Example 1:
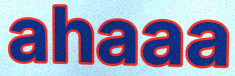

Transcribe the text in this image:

ahaaa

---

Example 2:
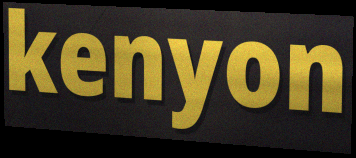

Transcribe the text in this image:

kenyon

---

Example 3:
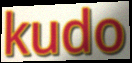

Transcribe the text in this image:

kudo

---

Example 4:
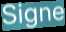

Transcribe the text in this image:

Signe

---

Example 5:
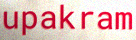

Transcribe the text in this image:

upakram